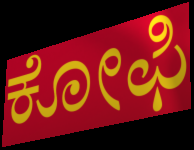
ಕೋಫಿ